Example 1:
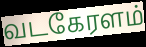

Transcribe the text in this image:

வடகேரளம்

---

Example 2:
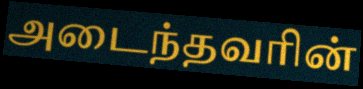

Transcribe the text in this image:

அடைந்தவரின்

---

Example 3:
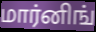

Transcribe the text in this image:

மார்னிங்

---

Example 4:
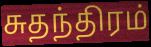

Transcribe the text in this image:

சுதந்திரம்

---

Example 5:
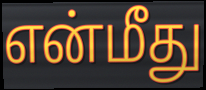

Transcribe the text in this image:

என்மீது